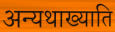
अन्यथाख्याति